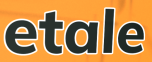
etale